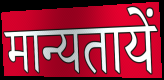
मान्यतायें